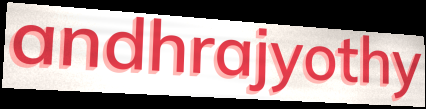
andhrajyothy